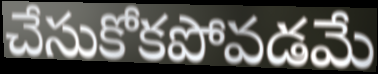
చేసుకోకపోవడమే